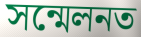
সন্মেলনত